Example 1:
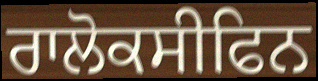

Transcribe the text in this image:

ਰਾਲੋਕਸੀਫਿਨ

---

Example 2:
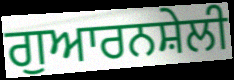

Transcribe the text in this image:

ਗੁਆਰਨਸ਼ੇਲੀ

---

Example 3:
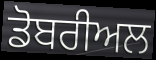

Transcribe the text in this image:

ਡੋਬਰੀਅਲ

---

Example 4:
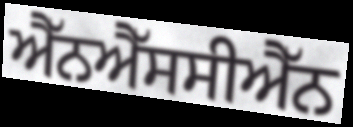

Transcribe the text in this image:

ਐੱਨਐੱਸਸੀਐੱਨ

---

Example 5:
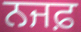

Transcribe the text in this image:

ਨਜਫ਼